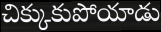
చిక్కుకుపోయాడు